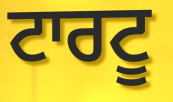
ਟਾਰਟੂ